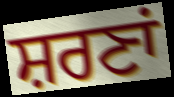
ਸ਼ਰਣਾਂ